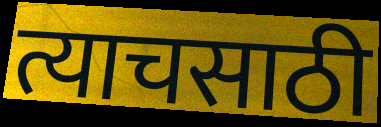
त्याचसाठी